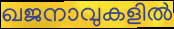
ഖജനാവുകളിൽ